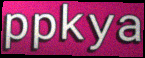
ppkya